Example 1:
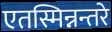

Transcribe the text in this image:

एतस्मिन्नन्तरे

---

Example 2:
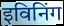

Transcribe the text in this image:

इविनिंग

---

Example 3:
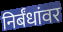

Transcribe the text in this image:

निर्बंधांवर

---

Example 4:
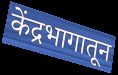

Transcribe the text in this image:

केंद्रभागातून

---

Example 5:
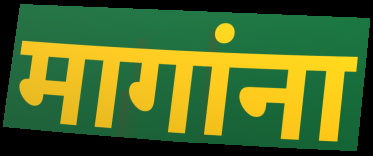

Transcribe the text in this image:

मागांना